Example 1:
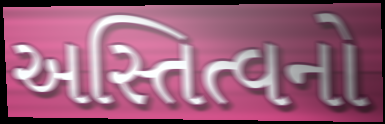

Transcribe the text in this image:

અસ્તિત્વનો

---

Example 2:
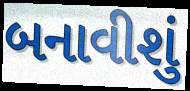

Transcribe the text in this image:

બનાવીશું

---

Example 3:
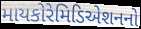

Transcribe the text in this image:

માયકોરેમિડિએશનનો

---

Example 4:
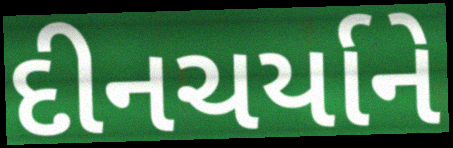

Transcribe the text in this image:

દીનચર્યાને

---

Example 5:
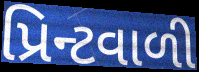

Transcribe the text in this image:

પ્રિન્ટવાળી